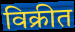
विक्रीत